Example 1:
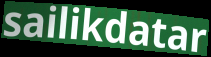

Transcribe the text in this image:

sailikdatar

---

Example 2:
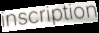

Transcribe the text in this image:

inscription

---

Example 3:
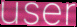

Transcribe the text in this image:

user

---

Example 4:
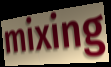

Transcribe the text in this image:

mixing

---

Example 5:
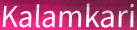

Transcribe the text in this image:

Kalamkari